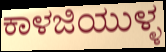
ಕಾಳಜಿಯುಳ್ಳ